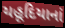
યહૂદિયાનાં